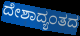
ದೇಶಾದ್ಯಂತದ